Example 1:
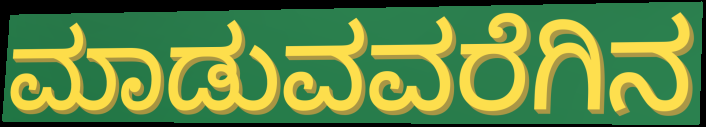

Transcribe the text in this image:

ಮಾಡುವವರೆಗಿನ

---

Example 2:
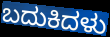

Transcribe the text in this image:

ಬದುಕಿದಳು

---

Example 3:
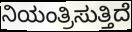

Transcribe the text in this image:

ನಿಯಂತ್ರಿಸುತ್ತಿದೆ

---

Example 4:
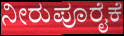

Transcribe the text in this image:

ನೀರುಪೂರೈಕೆ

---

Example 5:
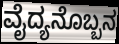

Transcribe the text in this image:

ವೈದ್ಯನೊಬ್ಬನ